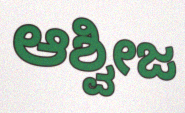
ಆಶ್ವೀಜ